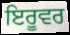
ਇਰੂਵਰ